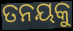
ତନୟକୁ